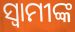
ସ୍ବାମୀଙ୍କ